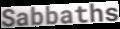
Sabbaths